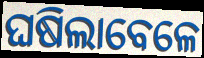
ଘଷିଲାବେଳେ